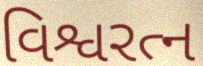
વિશ્વરત્ન